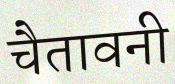
चैतावनी